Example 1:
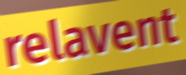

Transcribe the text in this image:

relavent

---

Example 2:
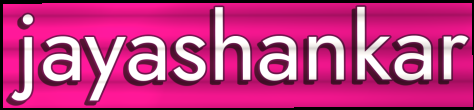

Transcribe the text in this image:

jayashankar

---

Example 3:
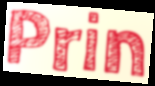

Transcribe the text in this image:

Prin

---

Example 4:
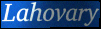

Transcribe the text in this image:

Lahovary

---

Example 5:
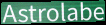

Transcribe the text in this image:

Astrolabe